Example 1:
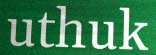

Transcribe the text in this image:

uthuk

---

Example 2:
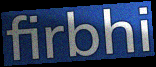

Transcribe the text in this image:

firbhi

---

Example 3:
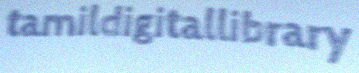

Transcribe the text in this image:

tamildigitallibrary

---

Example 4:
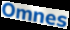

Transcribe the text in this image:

Omnes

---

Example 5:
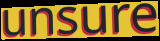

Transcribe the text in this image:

unsure